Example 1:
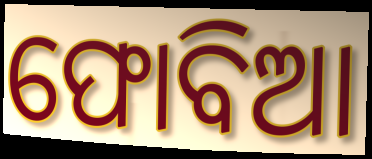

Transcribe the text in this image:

ଫୋବିଆ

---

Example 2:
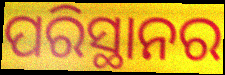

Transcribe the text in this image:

ପରିସ୍ଥାନର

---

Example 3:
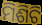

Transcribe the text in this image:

ମିଶିଚି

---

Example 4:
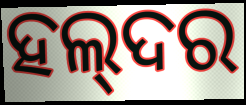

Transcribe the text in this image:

ହଲ୍‌ଦର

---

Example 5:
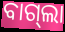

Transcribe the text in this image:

ବାଗ୍‌ଲା